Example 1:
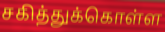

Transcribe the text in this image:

சகித்துக்கொள்ள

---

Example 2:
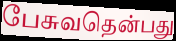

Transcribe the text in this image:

பேசுவதென்பது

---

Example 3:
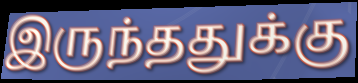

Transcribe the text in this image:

இருந்ததுக்கு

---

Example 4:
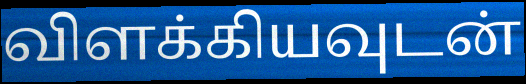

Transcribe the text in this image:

விளக்கியவுடன்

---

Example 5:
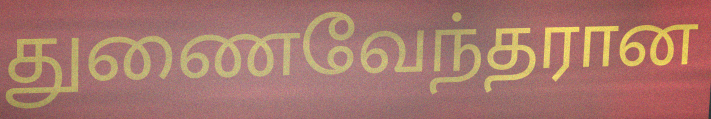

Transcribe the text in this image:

துணைவேந்தரான